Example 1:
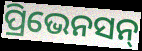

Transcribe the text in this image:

ପ୍ରିଭେନସନ୍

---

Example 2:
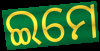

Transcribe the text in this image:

ଇମେ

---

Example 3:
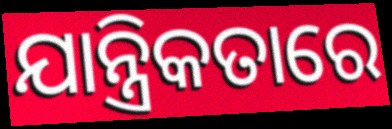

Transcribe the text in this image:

ଯାନ୍ତ୍ରିକତାରେ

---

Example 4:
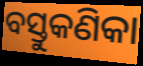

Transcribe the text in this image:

ବସ୍ତୁକଣିକା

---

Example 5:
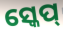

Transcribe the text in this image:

ସ୍କେପ୍